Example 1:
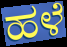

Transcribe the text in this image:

ಹಳೆ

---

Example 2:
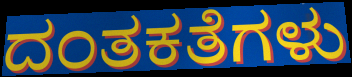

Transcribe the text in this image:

ದಂತಕತೆಗಳು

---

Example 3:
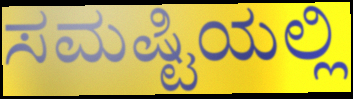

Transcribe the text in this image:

ಸಮಷ್ಟಿಯಲ್ಲಿ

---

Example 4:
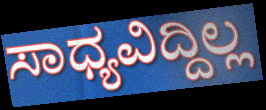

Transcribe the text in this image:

ಸಾಧ್ಯವಿದ್ದಿಲ್ಲ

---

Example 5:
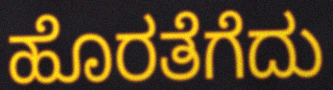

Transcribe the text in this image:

ಹೊರತೆಗೆದು